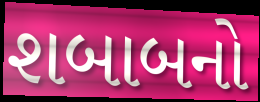
શબાબનો